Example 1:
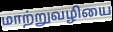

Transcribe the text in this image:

மாற்றுவழியை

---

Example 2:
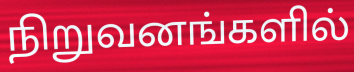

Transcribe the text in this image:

நிறுவனங்களில்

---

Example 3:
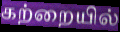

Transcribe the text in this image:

கற்றையில்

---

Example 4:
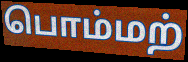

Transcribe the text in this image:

பொம்மற்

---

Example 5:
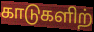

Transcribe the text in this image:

காடுகளிற்